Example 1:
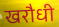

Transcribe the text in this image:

खरौधी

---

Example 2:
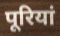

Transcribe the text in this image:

पूरियां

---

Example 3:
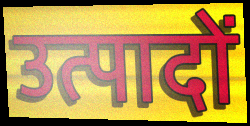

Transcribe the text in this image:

उत्पादों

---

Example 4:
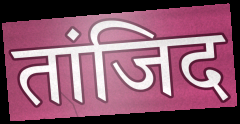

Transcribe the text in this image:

तांजिद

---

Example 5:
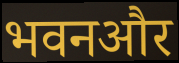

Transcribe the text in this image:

भवनऔर